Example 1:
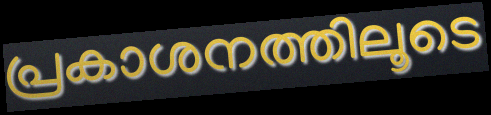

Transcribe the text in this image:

പ്രകാശനത്തിലൂടെ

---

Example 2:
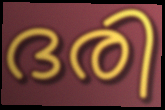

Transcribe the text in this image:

ദരി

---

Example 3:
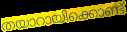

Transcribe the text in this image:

തയാറായിക്കൊണ്ട്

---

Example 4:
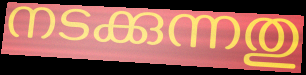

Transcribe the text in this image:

നടക്കുന്നതു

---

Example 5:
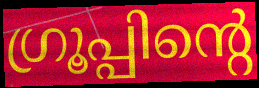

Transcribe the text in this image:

ഗ്രൂപ്പിന്റെ